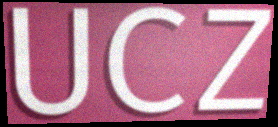
UCZ